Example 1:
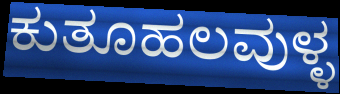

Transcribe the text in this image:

ಕುತೂಹಲವುಳ್ಳ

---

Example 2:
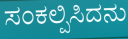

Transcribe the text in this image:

ಸಂಕಲ್ಪಿಸಿದನು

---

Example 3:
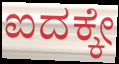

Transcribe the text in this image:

ಐದಕ್ಕೇ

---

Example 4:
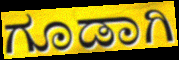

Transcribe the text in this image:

ಗೂಡಾಗಿ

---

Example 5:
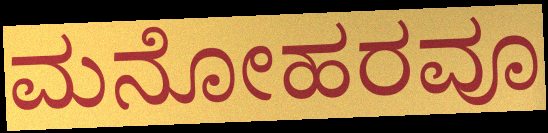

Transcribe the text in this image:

ಮನೋಹರವೂ